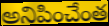
అనిపించేంత